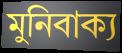
মুনিবাক্য